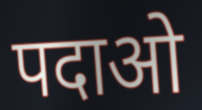
पदाओ